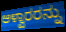
ಆಳ್ವಾರರನ್ನು